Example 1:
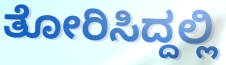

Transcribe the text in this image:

ತೋರಿಸಿದ್ದಲ್ಲಿ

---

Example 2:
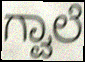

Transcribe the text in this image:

ಗ್ವಾಲೆ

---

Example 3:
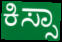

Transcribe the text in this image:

ಕಿಸ್ಸಾ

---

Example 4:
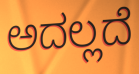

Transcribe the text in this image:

ಅದಲ್ಲದೆ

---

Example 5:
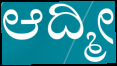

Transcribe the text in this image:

ಆದ್ಮೀ